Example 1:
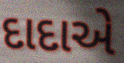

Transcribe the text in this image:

દાદાએ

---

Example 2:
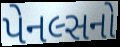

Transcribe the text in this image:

પેનલ્સનો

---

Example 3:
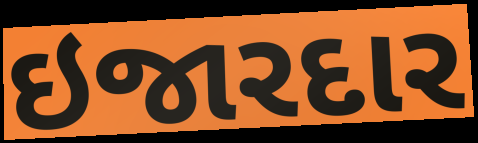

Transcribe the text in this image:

ઇજારદાર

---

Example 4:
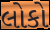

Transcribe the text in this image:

લોકો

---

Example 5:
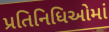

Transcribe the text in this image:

પ્રતિનિધિઓમાં